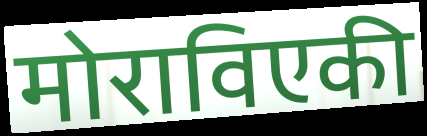
मोराविएकी